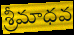
శ్రీమాధవ